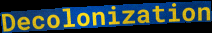
Decolonization